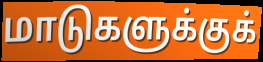
மாடுகளுக்குக்